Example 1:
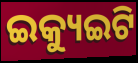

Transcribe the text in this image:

ଇକ୍ୟୁଇଟି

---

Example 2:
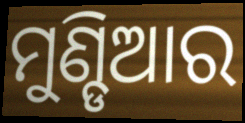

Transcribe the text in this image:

ମୁଣ୍ଡିଆର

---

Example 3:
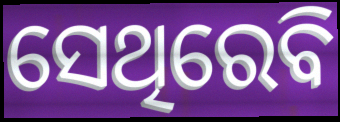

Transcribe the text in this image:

ସେଥିରେବି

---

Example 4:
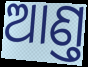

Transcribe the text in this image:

ଆଣ୍ତ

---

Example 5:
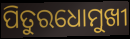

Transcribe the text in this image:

ପିତୁରଧୋମୁଖୀ